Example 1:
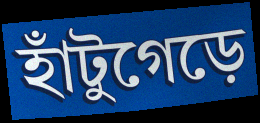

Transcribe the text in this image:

হাঁটুগেড়ে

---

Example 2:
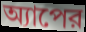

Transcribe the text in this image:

অ্যাপের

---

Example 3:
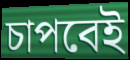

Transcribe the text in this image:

চাপবেই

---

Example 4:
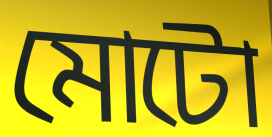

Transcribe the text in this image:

মোটো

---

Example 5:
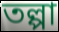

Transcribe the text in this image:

তল্পা